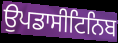
ਉਪਡਾਸੀਟਿਨਿਬ